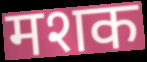
मशक